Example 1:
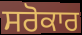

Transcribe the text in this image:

ਸਰੋਕਾਰ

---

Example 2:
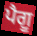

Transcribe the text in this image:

ਪੈਗੂ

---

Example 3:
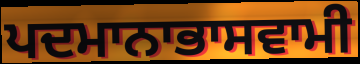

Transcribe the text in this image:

ਪਦਮਾਨਾਭਾਸਵਾਮੀ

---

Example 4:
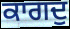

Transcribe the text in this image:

ਕਾਗਦੁ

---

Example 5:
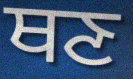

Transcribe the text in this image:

ਥਣ